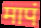
मापं